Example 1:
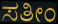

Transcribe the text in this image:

ಸತೀಂ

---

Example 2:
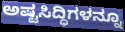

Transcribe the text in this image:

ಅಷ್ಟಸಿದ್ಧಿಗಳನ್ನೂ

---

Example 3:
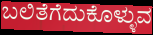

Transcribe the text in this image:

ಬಲಿತೆಗೆದುಕೊಳ್ಳುವ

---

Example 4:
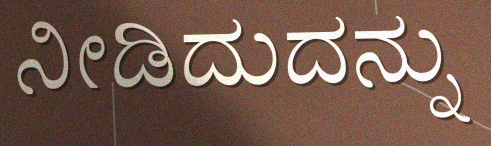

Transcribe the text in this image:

ನೀಡಿದುದನ್ನು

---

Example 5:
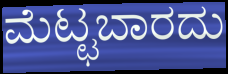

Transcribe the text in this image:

ಮೆಟ್ಟಬಾರದು